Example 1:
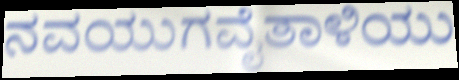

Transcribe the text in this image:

ನವಯುಗವೈತಾಳಿಯು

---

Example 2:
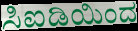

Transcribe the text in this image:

ಸಿಐಡಿಯಿಂದ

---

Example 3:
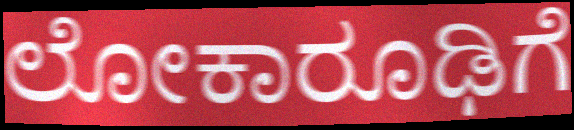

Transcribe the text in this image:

ಲೋಕಾರೂಢಿಗೆ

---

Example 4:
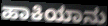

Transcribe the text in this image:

ಹಾಕಿಯಾನು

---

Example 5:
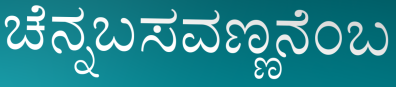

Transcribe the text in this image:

ಚೆನ್ನಬಸವಣ್ಣನೆಂಬ